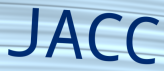
JACC